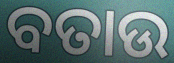
ବତାଉ